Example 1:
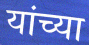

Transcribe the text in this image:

यांच्‍या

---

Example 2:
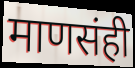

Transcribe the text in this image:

माणसंही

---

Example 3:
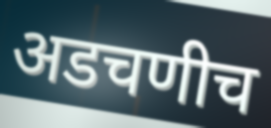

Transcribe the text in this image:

अडचणीच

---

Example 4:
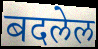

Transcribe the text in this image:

बदलेल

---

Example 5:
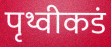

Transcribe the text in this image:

पृथ्वीकडं